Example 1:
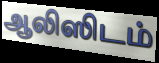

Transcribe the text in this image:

ஆலிஸிடம்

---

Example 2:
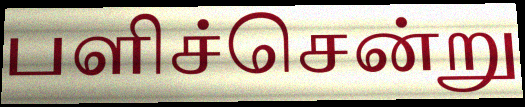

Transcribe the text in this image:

பளிச்சென்று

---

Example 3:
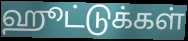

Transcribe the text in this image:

ஹூட்டுக்கள்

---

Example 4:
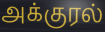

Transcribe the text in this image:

அக்குரல்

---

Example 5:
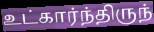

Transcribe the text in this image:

உட்கார்ந்திருந்